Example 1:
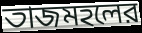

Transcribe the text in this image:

তাজমহলের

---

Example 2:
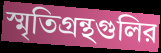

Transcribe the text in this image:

স্মৃতিগ্রন্থগুলির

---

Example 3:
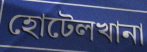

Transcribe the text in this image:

হোটেলখানা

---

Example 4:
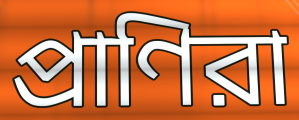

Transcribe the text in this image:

প্রাণিরা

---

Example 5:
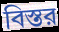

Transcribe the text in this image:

বিস্তর